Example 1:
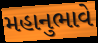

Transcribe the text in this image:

મહાનુભાવે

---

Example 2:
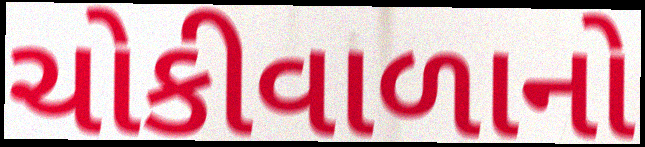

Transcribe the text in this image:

ચોકીવાળાનો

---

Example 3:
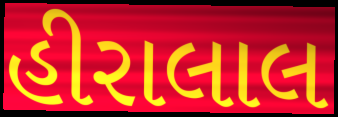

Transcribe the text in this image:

હીરાલાલ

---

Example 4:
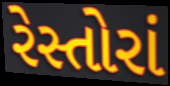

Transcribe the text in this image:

રેસ્તોરાં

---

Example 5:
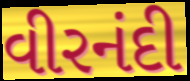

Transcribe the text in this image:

વીરનંદી